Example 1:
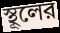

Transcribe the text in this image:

স্থূলের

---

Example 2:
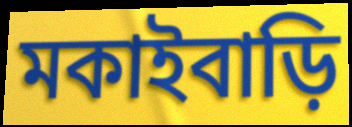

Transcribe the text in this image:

মকাইবাড়ি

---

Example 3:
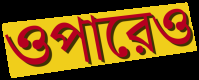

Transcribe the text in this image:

ওপারেও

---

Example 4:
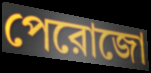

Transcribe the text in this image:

পেরোজো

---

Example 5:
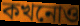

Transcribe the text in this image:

কখনোও